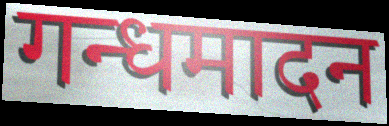
गन्धमादन